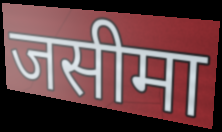
जसीमा